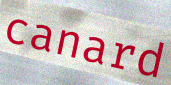
canard